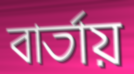
বার্তায়